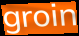
groin